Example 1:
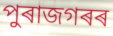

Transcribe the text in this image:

পুৰাজগৰৰ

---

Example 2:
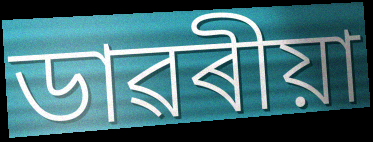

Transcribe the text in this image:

ডাৱৰীয়া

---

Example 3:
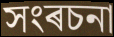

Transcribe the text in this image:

সংৰচনা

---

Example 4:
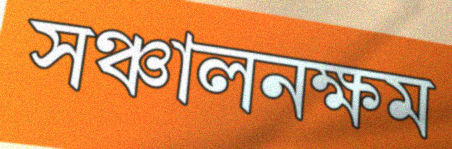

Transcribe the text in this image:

সঞ্চালনক্ষম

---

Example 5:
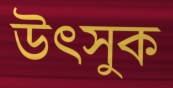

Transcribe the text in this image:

উৎসুক